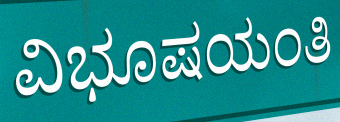
ವಿಭೂಷಯಂತಿ